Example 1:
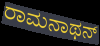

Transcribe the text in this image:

ರಾಮನಾಥನ್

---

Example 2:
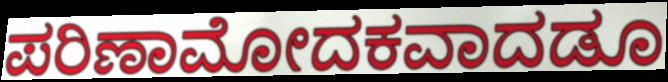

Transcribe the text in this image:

ಪರಿಣಾಮೋದಕವಾದಡೂ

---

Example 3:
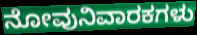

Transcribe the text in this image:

ನೋವುನಿವಾರಕಗಳು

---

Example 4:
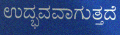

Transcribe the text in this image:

ಉದ್ಭವವಾಗುತ್ತದೆ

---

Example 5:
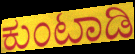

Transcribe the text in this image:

ಕುಂಟಾಡಿ